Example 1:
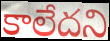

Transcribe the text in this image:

కాలేదని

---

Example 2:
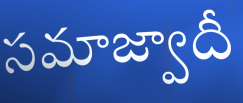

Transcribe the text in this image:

సమాజ్వాదీ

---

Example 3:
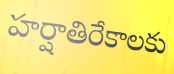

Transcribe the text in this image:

హర్షాతిరేకాలకు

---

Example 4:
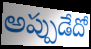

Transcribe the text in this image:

అప్పుడేదో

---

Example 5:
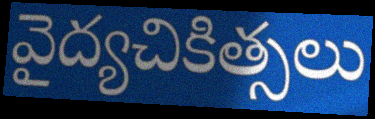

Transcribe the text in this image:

వైద్యచికిత్సలు